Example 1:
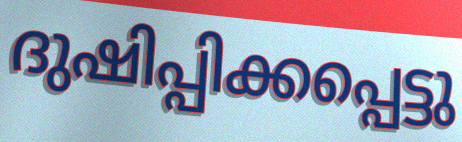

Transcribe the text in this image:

ദുഷിപ്പിക്കപ്പെട്ടു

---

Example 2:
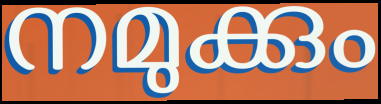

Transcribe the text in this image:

നമുക്കും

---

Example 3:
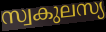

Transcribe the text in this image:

സ്വകുലസ്യ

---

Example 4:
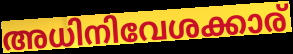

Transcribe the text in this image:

അധിനിവേശക്കാര്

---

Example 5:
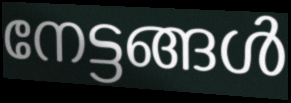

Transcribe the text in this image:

നേട്ടങ്ങൾ